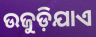
ଉଜୁଡ଼ିଯାଏ